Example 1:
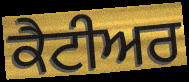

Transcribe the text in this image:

ਕੈਟੀਅਰ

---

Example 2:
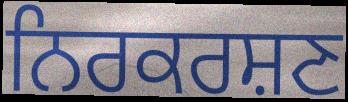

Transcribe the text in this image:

ਨਿਰਕਰਸ਼ਣ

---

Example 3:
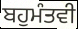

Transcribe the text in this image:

ਬਹੁਮੰਤਵੀ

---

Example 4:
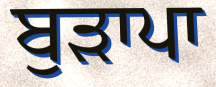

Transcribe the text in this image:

ਬੁੜਾਪਾ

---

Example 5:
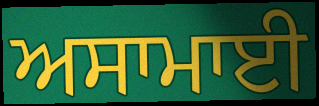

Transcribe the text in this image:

ਅਸਾਮਾਈ